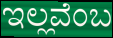
ಇಲ್ಲವೆಂಬ